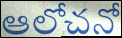
ఆలోచనో